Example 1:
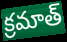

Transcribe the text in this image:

క్రమాత్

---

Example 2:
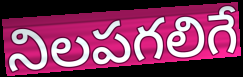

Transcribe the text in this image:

నిలపగలిగే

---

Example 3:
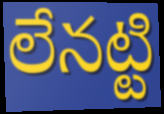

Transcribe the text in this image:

లేనట్టి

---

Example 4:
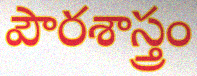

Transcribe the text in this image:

పౌరశాస్త్రం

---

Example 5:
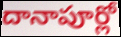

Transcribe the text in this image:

దానాపూర్లో